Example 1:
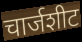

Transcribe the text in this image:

चार्जशीट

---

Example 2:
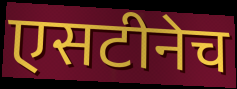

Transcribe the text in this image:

एसटीनेच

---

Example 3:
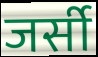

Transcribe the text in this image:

जर्सी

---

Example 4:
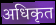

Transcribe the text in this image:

अधिकृत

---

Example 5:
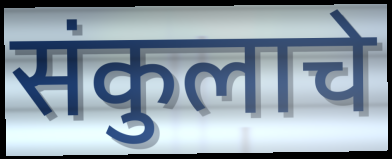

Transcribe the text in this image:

संकुलाचे